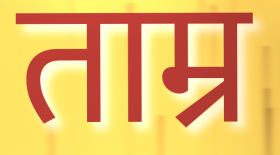
ताम्र